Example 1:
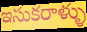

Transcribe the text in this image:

ఇసుకరాళ్ళు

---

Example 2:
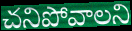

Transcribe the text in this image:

చనిపోవాలని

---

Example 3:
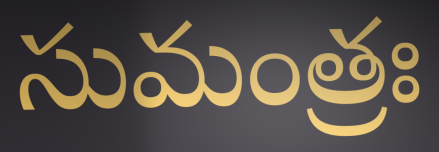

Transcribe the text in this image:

సుమంత్రః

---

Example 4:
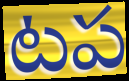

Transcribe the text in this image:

టప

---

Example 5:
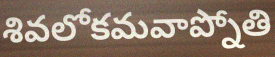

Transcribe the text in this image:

శివలోకమవాప్నోతి